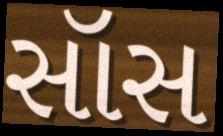
સૉસ